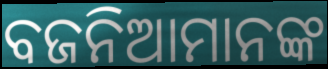
ବଜନିଆମାନଙ୍କ